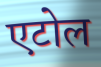
एटोल